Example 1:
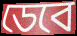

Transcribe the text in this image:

ডেবে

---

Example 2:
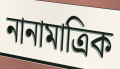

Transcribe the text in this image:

নানামাত্রিক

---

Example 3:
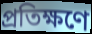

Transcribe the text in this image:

প্রতিক্ষণে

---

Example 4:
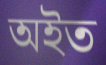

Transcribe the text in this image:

অইত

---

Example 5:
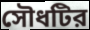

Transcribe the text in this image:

সৌধটির